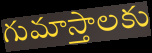
గుమాస్తాలకు